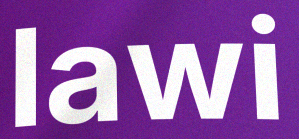
lawi